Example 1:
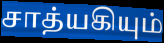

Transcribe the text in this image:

சாத்யகியும்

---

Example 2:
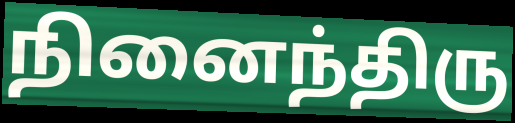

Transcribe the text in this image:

நினைந்திரு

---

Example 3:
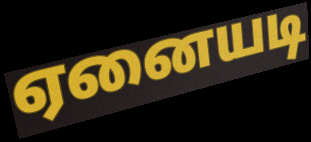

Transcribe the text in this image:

ஏனையடி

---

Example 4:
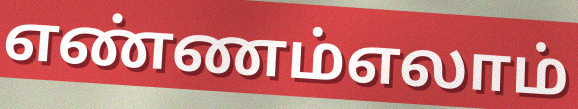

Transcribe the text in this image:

எண்ணம்எலாம்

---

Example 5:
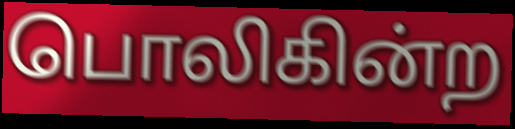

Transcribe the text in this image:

பொலிகின்ற